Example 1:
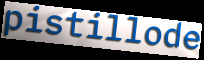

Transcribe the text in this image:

pistillode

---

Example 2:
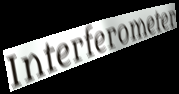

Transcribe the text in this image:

Interferometer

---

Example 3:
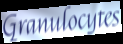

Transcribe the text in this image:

Granulocytes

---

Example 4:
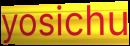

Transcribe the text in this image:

yosichu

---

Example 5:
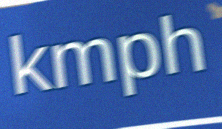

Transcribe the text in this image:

kmph